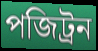
পজিট্রন